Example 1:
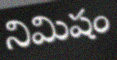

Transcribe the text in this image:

నిమిషం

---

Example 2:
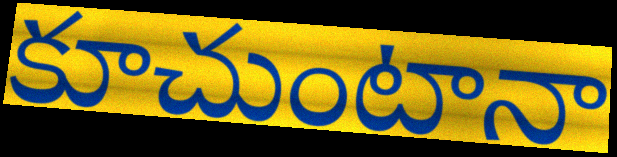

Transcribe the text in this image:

కూచుంటానా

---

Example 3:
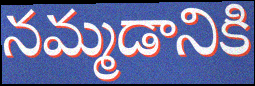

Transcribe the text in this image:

నమ్మడానికి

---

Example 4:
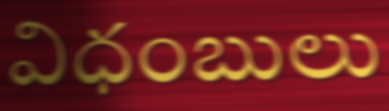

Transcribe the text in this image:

విధంబులు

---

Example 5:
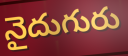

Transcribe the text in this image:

నైదుగురు